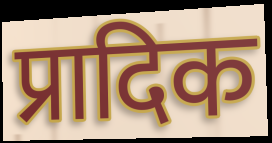
प्रादिक